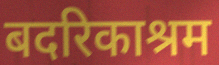
बदरिकाश्रम